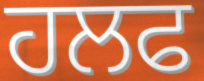
ਹਲਫ